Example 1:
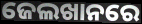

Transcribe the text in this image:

ଜେଲଖାନରେ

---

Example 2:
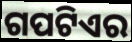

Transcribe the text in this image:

ଗପଟିଏର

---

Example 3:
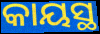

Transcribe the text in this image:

କାୟସ୍ଥ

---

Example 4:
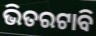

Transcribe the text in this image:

ଭିତରଟାବି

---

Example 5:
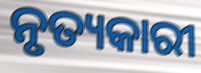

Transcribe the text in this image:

ନୃତ୍ୟକାରୀ